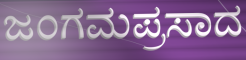
ಜಂಗಮಪ್ರಸಾದ